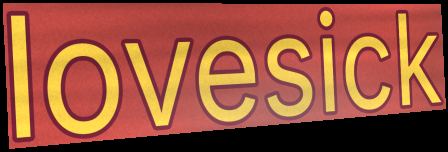
lovesick